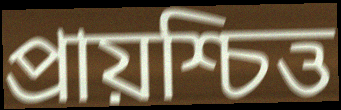
প্ৰায়শ্চিত্ত